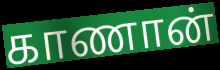
காணான்